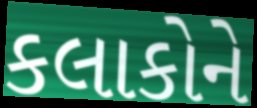
કલાકોને